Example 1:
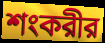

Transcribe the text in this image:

শংকরীর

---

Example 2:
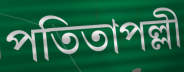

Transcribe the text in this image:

পতিতাপল্লী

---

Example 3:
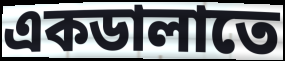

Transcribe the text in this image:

একডালাতে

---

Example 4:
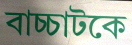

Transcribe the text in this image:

বাচ্চাটকে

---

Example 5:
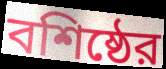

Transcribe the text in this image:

বশিষ্ঠের